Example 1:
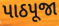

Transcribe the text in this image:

પાઠપૂજા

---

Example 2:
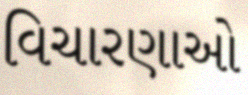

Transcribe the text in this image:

વિચારણાઓ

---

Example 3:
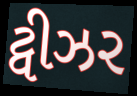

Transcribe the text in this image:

ટ્વીઝર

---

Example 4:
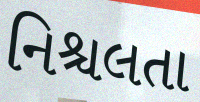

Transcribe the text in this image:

નિશ્ચલતા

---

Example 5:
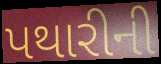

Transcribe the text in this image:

પથારીની